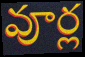
వూర్ల